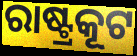
ରାଷ୍ଟ୍ରକୂଟ